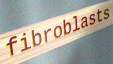
fibroblasts